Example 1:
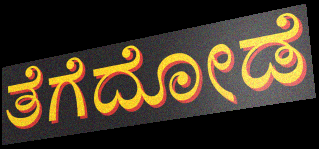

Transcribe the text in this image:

ತೆಗೆದೋಡೆ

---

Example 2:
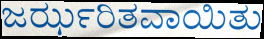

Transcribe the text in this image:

ಜರ್ಝರಿತವಾಯಿತು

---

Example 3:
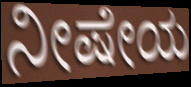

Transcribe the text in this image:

ನೀಷೇಯ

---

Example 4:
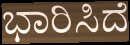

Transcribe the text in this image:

ಭಾರಿಸಿದೆ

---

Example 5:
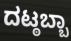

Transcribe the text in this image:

ದಟ್ಠಬ್ಬಾ